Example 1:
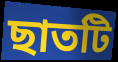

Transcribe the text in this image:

ছাতটি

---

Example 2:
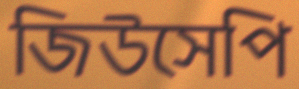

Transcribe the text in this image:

জিউসেপি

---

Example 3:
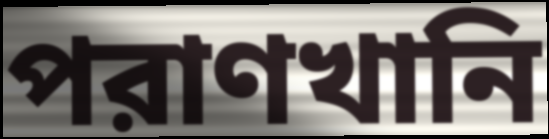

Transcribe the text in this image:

পরাণখানি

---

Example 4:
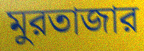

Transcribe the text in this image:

মুরতাজার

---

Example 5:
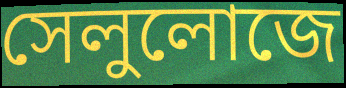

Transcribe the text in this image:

সেলুলোজে